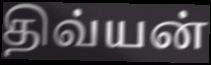
திவ்யன்